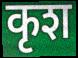
कृश